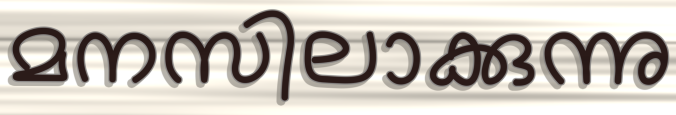
മനസിലാക്കുന്നു